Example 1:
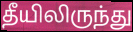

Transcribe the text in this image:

தீயிலிருந்து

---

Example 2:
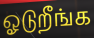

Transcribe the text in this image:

ஓடுறீங்க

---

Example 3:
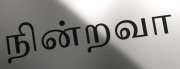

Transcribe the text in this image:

நின்றவா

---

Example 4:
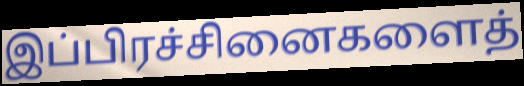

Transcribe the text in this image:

இப்பிரச்சினைகளைத்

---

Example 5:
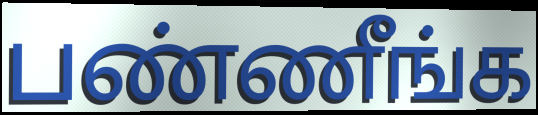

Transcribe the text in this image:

பண்ணீங்க